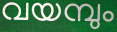
വയമ്പും